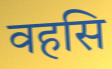
वहसि